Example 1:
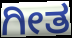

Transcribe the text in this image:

ಗೀತ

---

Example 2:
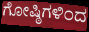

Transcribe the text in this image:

ಗೋಷ್ಠಿಗಳಿಂದ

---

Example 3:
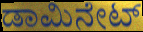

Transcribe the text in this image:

ಡಾಮಿನೇಟ್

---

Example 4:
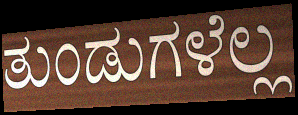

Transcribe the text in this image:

ತುಂಡುಗಳೆಲ್ಲ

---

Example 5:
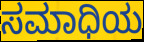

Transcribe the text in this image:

ಸಮಾಧಿಯ